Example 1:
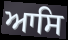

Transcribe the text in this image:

ਆਸਿ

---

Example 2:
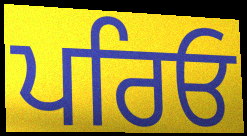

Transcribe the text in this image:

ਪਰਿਓ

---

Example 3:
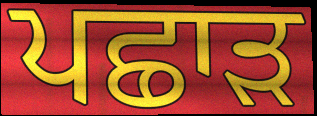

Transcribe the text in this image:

ਪਛਾੜ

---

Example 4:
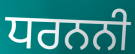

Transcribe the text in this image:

ਧਰਨਨੀ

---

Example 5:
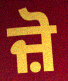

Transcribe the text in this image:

ਜ਼ੋ